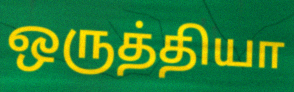
ஒருத்தியா